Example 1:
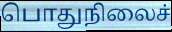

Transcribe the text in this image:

பொதுநிலைச்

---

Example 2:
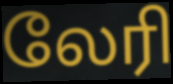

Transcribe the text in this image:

லேரி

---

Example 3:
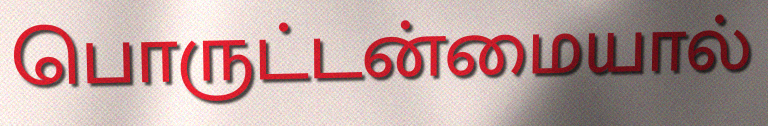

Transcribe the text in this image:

பொருட்டன்மையால்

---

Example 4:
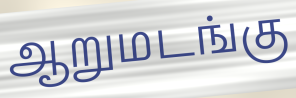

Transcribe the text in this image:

ஆறுமடங்கு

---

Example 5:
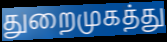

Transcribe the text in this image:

துறைமுகத்து